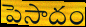
పెసాదం